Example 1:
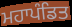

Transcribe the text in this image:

ਮਹਾਪੰਡਿਤ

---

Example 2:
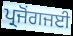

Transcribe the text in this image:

ਪ੍ਰਜੋਂਗਜਈ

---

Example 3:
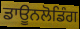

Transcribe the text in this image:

ਡਾਊਨਲੋਡਿੰਗ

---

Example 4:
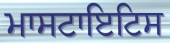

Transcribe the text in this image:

ਮਾਸਟਾਇਟਿਸ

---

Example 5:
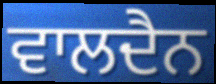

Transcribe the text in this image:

ਵਾਲਦੈਨ